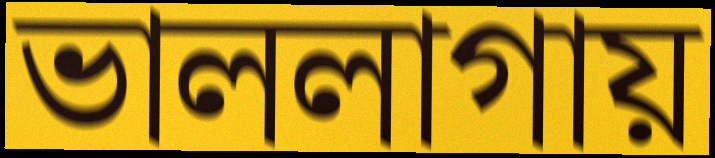
ভাললাগায়